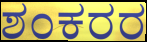
ಶಂಕರರ